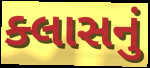
ક્લાસનું